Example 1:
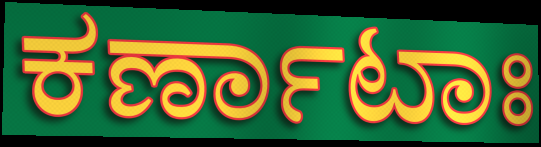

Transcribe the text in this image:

ಕರ್ಣಾಟಾಃ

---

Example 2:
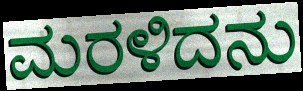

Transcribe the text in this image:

ಮರಳಿದನು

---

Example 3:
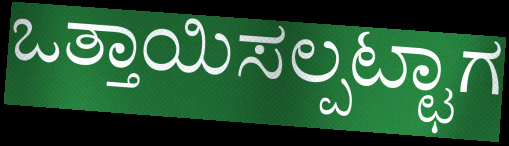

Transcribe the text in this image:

ಒತ್ತಾಯಿಸಲ್ಪಟ್ಟಾಗ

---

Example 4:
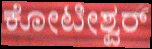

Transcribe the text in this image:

ಕೋಟೀಶ್ವರ್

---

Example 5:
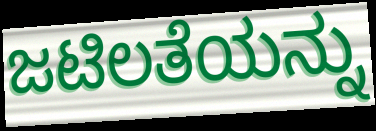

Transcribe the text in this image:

ಜಟಿಲತೆಯನ್ನು